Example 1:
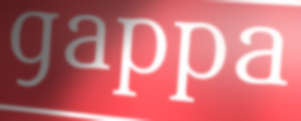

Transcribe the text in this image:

gappa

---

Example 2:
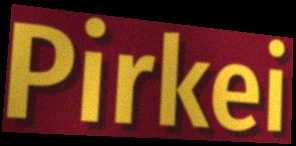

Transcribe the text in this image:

Pirkei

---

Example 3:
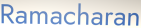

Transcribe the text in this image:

Ramacharan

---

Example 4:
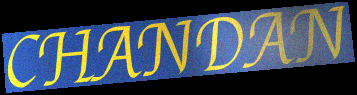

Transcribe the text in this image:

CHANDAN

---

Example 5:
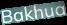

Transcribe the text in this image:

Bakhua